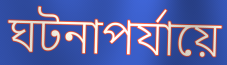
ঘটনাপর্যায়ে